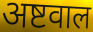
अष्टवाल